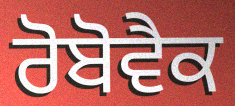
ਰੋਬੋਵੈਕ